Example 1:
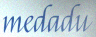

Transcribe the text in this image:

medadu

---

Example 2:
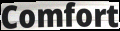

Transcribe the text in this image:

Comfort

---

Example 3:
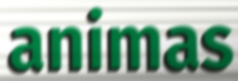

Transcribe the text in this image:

animas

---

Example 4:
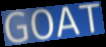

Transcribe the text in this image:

GOAT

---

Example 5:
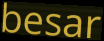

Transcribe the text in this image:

besar